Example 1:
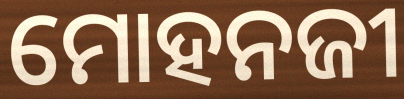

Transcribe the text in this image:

ମୋହନଜୀ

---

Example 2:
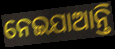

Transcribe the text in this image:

ନେଇଯାଆନ୍ତି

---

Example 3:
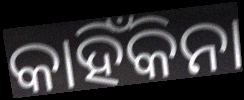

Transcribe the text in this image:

କାହିଁକିନା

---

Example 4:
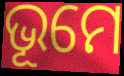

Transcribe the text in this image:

ଭୂମେ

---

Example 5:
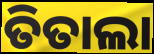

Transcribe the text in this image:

ତିତାଲା